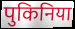
पुकिनिया